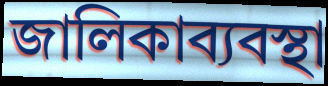
জালিকাব্যবস্থা